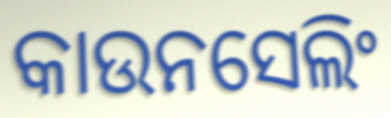
କାଉନସେଲିଂ